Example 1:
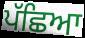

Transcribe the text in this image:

ਪੱਛਿਆ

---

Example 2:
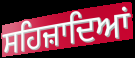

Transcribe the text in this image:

ਸਹਿਜ਼ਾਦਿਆਂ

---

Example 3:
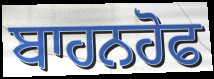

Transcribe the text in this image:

ਬਾਹਨਹੋਫ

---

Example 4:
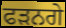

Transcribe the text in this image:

ਫੜਨਗੇ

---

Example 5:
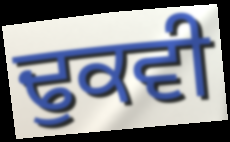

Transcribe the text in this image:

ਢੁਕਵੀ